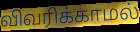
விவரிக்காமல்